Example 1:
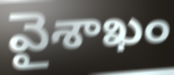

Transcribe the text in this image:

వైశాఖం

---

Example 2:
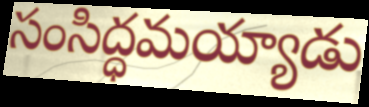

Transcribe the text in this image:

సంసిద్ధమయ్యాడు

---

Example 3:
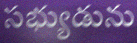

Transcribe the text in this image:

సభ్యుడును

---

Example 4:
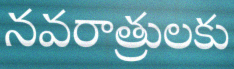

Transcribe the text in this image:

నవరాత్రులకు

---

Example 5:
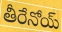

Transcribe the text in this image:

తీరేనోయ్